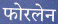
फोरलेन